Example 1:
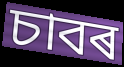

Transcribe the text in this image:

চাবৰ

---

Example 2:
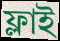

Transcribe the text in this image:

ফ্লাই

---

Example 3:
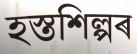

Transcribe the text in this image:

হস্তশিল্পৰ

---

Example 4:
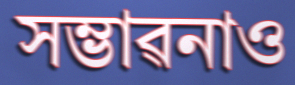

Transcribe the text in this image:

সম্ভাৱনাও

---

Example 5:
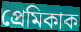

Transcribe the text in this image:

প্ৰেমিকাক